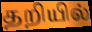
தறியில்